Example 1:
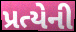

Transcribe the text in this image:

પ્રત્યેની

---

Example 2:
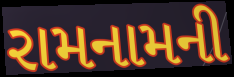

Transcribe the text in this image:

રામનામની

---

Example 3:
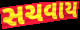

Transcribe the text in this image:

સચવાય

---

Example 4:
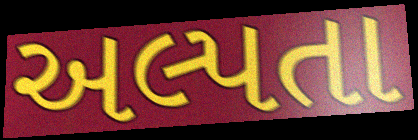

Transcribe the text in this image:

અલ્પતા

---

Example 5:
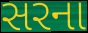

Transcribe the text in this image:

સરના